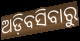
ଅଡ଼ିବସିବାରୁ